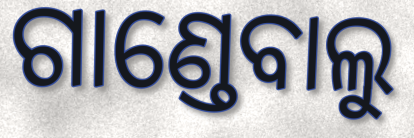
ଗାଣ୍ଡେବାଲୁ